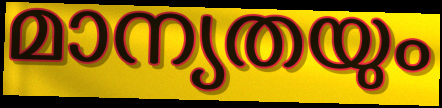
മാന്യതയും